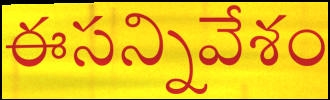
ఈసన్నివేశం